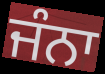
ਜੰਨਾ